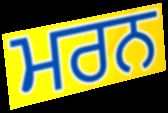
ਮਰਨ